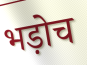
भड़ोच